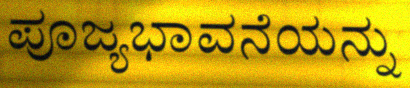
ಪೂಜ್ಯಭಾವನೆಯನ್ನು